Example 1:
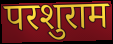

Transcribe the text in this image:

परशुराम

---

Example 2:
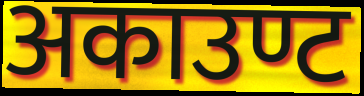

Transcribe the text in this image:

अकाउण्ट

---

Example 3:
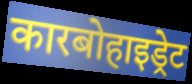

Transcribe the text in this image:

कारबोहाइड्रेट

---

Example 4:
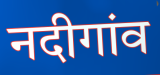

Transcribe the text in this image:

नदीगांव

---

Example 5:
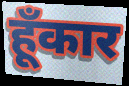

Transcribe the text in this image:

हूँकार